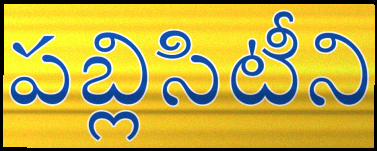
పబ్లిసిటీని